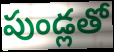
పుండ్లతో